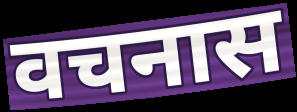
वचनास